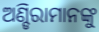
ଅଣ୍ଡିରାମାନଙ୍କୁ